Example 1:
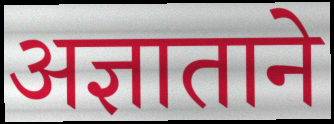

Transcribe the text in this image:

अज्ञाताने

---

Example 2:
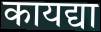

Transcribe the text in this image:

कायद्या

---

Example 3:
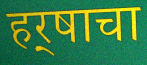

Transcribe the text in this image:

हर्षाचा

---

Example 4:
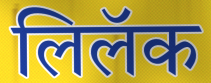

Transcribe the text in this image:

लिलॅक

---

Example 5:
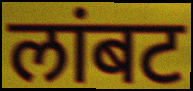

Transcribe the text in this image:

लांबट